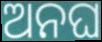
ଅନଘ